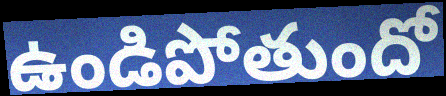
ఉండిపోతుందో